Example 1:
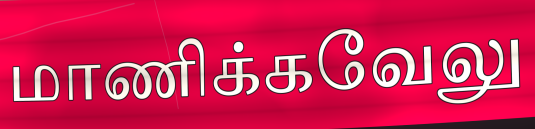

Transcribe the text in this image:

மாணிக்கவேலு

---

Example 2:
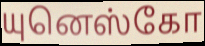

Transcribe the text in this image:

யுனெஸ்கோ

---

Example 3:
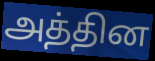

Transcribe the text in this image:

அத்தின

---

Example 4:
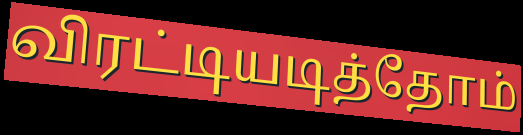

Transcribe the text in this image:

விரட்டியடித்தோம்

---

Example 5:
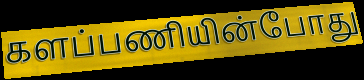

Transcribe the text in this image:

களப்பணியின்போது